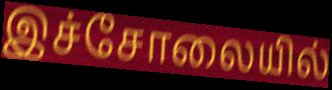
இச்சோலையில்